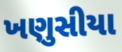
ખણુસીયા